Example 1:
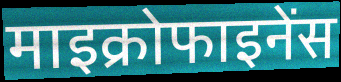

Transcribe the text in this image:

माइक्रोफाइनेंस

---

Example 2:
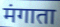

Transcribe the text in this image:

मंगाता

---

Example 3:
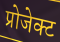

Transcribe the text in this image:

प्रोजेक्ट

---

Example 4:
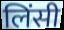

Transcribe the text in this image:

लिंसी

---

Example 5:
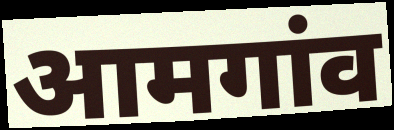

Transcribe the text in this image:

आमगांव